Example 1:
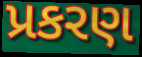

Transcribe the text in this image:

પ્રકરણ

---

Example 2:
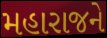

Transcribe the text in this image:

મહારાજને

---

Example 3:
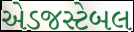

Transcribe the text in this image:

એડજસ્ટેબલ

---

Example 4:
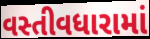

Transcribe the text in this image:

વસ્તીવધારામાં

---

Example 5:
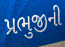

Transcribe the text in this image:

પ્રભુજીની